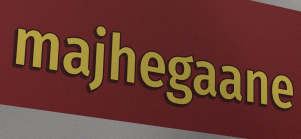
majhegaane